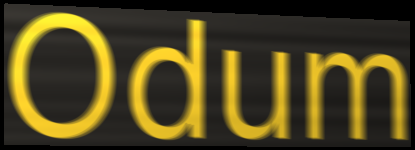
Odum